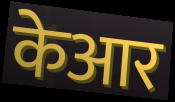
केआर